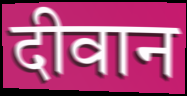
दीवान